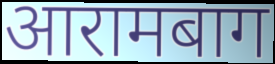
आरामबाग